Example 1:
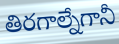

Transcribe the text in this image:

తిరగాల్నేగానీ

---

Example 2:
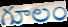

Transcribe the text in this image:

గూలం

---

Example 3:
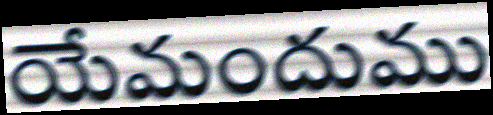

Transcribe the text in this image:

యేమందుము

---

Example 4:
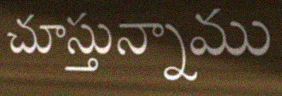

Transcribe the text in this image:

చూస్తున్నాము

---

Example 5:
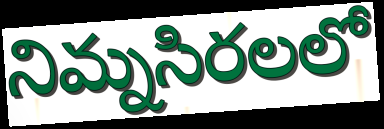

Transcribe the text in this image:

నిమ్నసిరలలో